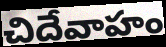
చిదేవాహం